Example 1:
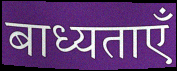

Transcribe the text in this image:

बाध्यताएँ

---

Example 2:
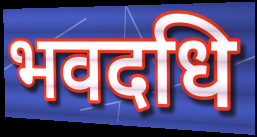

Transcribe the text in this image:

भवदधि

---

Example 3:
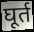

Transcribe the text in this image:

घूर्त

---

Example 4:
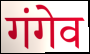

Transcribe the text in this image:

गंगेव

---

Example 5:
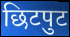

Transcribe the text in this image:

छिटपुट